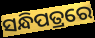
ସନ୍ଧିପତ୍ରରେ